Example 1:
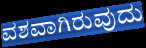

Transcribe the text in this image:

ವಶವಾಗಿರುವುದು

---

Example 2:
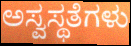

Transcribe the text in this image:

ಅಸ್ವಸ್ಥತೆಗಳು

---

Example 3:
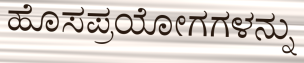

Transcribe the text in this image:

ಹೊಸಪ್ರಯೋಗಗಳನ್ನು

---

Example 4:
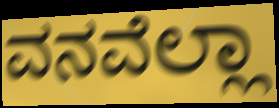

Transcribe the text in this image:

ವನವೆಲ್ಲಾ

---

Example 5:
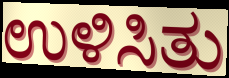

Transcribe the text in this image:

ಉಳಿಸಿತು